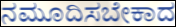
ನಮೂದಿಸಬೇಕಾದ